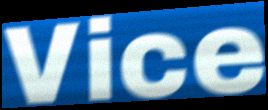
Vice